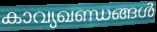
കാവ്യഖണ്ഡങ്ങൾ